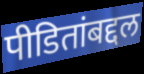
पीडितांबद्दल